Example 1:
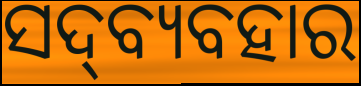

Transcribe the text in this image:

ସଦ୍‍ବ୍ୟବହାର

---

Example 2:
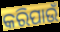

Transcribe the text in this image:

କରିପାଉଁ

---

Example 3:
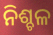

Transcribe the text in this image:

ନିଶ୍ଚଳ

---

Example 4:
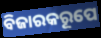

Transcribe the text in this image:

ବିଜାରକରୂପେ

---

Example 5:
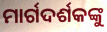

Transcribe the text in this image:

ମାର୍ଗଦର୍ଶକଙ୍କୁ